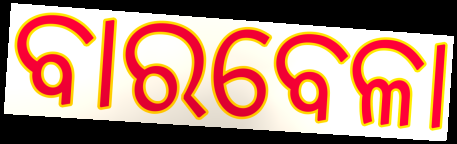
ବାରବେଳା